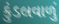
કુંડલવાળું